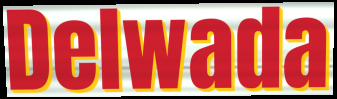
Delwada